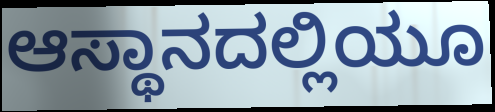
ಆಸ್ಥಾನದಲ್ಲಿಯೂ